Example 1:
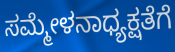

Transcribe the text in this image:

ಸಮ್ಮೇಳನಾಧ್ಯಕ್ಷತೆಗೆ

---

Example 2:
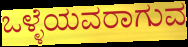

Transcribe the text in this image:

ಒಳ್ಳೆಯವರಾಗುವ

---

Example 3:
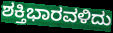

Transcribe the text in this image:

ಶಕ್ತಿಭಾರವಳಿದು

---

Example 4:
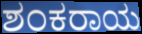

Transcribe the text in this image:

ಶಂಕರಾಯ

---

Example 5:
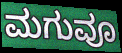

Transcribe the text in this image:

ಮಗುವೂ